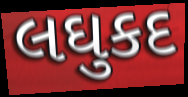
લઘુકદ